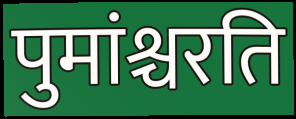
पुमांश्चरति